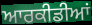
ਆਰਕੀਡੀਆਂ